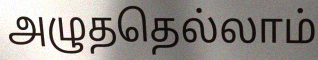
அழுததெல்லாம்